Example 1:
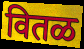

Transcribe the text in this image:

वितळ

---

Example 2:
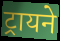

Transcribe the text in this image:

ट्रायने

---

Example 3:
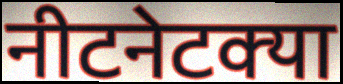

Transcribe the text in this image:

नीटनेटक्‍या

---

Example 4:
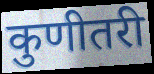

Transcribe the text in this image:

कुणीतरी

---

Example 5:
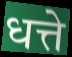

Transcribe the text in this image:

धत्ते